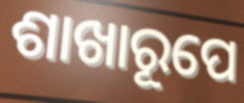
ଶାଖାରୂପେ